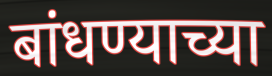
बांधण्याच्या